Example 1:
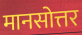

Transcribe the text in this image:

मानसोत्तर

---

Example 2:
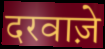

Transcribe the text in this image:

दरवाज़े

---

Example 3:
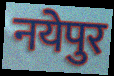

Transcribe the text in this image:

नयेपुर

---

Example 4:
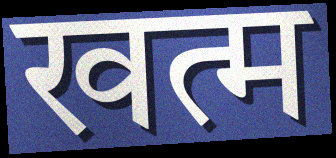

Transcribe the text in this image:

खत्‍म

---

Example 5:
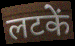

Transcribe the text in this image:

लटकें